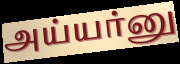
அய்யர்னு